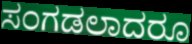
ಸಂಗಡಲಾದರೂ